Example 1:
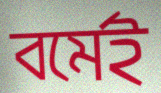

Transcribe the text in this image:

বর্মেই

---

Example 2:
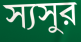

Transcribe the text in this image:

স্যসুর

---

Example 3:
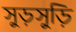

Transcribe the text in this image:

সুড়সুড়ি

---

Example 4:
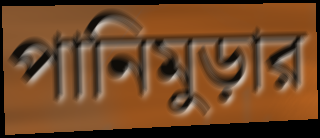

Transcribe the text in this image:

পানিমুড়ার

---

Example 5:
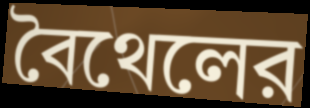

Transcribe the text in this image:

বৈথেলের